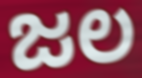
ಜಲ